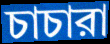
চাচারা